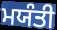
ਮਯੰਤੀ